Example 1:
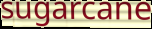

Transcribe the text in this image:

sugarcane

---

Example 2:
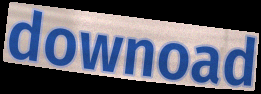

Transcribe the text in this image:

downoad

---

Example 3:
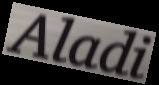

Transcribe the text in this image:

Aladi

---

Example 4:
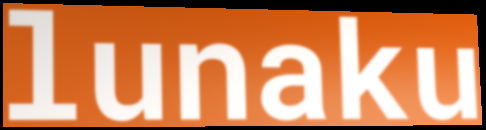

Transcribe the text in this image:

lunaku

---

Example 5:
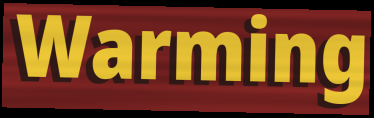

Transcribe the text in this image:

Warming